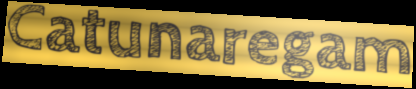
Catunaregam